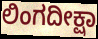
ಲಿಂಗದೀಕ್ಷಾ